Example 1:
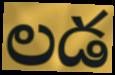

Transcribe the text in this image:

లడ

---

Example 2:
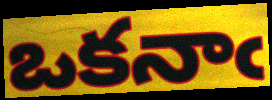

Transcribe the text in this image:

ఒకనాఁ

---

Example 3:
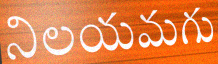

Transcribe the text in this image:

నిలయమగు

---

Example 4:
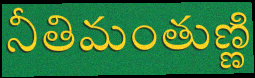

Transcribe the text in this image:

నీతిమంతుణ్ణి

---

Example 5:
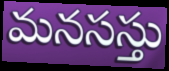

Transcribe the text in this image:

మనసస్తు